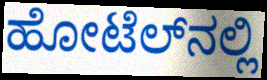
ಹೋಟೆಲ್‌ನಲ್ಲಿ